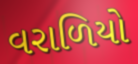
વરાળિયો